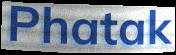
Phatak